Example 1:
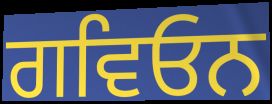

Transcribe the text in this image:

ਗਵਿਓਨ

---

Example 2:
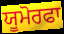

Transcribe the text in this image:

ਯੂਮੋਰਫਾ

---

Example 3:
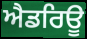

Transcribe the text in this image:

ਐਡਰਿਊ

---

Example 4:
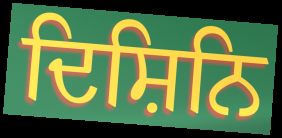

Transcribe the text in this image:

ਦਿਸ਼ਿਨਿ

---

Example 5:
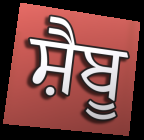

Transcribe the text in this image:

ਸ਼ੈਬੂ